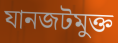
যানজটমুক্ত